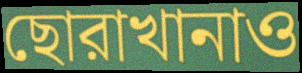
ছোরাখানাও